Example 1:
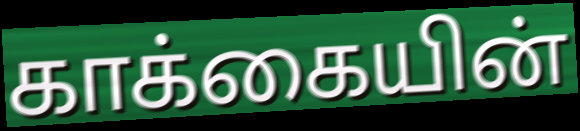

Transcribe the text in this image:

காக்கையின்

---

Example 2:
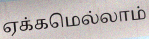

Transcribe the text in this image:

ஏக்கமெல்லாம்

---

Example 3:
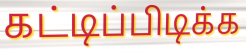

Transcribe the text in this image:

கட்டிப்பிடிக்க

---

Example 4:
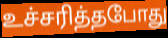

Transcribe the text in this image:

உச்சரித்தபோது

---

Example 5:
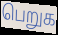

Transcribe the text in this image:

பெறுக